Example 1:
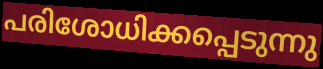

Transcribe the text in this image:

പരിശോധിക്കപ്പെടുന്നു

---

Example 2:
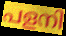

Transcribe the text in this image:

പളനി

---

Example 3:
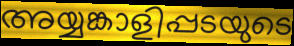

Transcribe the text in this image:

അയ്യങ്കാളിപ്പടയുടെ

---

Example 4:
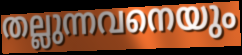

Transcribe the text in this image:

തല്ലുന്നവനെയും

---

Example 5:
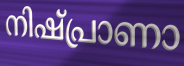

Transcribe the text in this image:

നിഷ്പ്രാണാ